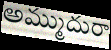
అమ్ముదురా